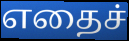
எதைச்